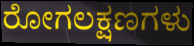
ರೋಗಲಕ್ಷಣಗಳು